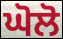
ਘੋਲੋ